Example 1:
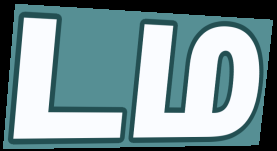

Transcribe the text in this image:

டம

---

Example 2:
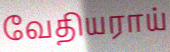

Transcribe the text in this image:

வேதியராய்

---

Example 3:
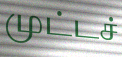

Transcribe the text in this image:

முட்டச்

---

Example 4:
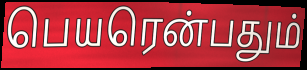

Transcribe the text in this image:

பெயரென்பதும்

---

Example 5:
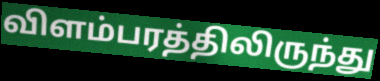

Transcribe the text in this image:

விளம்பரத்திலிருந்து